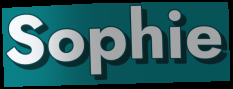
Sophie